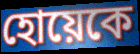
হোয়েকে